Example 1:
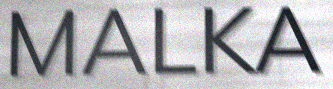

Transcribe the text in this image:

MALKA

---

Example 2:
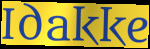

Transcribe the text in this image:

Idakke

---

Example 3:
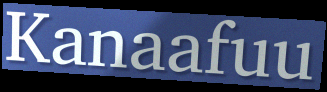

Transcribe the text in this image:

Kanaafuu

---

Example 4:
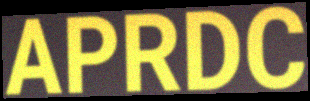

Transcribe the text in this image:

APRDC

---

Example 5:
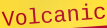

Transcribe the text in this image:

Volcanic